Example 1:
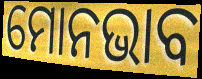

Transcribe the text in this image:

ମୋନଭାବ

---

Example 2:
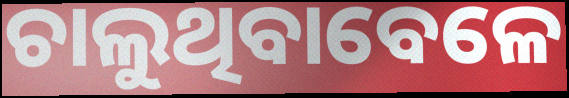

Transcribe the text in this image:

ଚାଲୁଥିବାବେଳେ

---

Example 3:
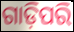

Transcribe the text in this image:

ଗାଡ଼ିପରି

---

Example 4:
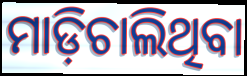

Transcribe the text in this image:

ମାଡ଼ିଚାଲିଥିବା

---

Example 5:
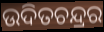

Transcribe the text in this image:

ଉଦିତଚନ୍ଦ୍ରର